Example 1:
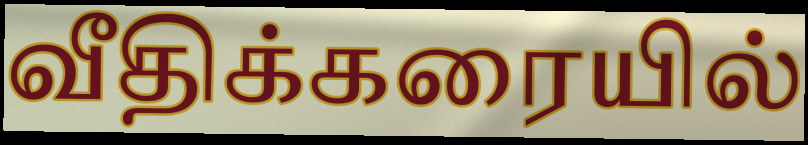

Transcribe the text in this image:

வீதிக்கரையில்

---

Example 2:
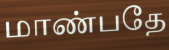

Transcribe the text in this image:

மாண்பதே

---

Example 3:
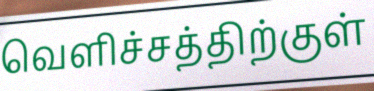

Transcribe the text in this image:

வெளிச்சத்திற்குள்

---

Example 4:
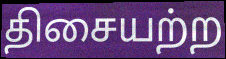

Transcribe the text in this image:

திசையற்ற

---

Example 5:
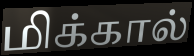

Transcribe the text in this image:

மிக்கால்